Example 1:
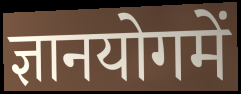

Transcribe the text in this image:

ज्ञानयोगमें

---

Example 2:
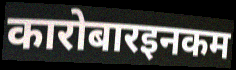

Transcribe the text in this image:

कारोबारइनकम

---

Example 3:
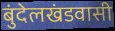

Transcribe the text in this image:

बुंदेलखंडवासी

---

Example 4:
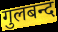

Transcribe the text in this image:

गुलबन्द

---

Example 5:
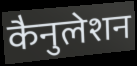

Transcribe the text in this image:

कैनुलेशन